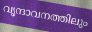
വൃന്ദാവനത്തിലും